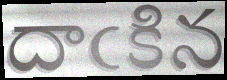
దాఁకిన